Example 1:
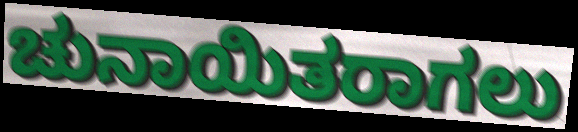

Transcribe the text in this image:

ಚುನಾಯಿತರಾಗಲು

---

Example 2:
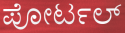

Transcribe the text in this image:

ಪೋರ್ಟಲ್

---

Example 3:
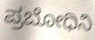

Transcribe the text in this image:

ಪ್ರಬೋಧಿನಿ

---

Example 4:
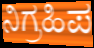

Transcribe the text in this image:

ನಿಗ್ರಹಿಪ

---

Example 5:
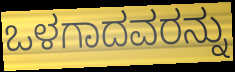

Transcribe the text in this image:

ಒಳಗಾದವರನ್ನು